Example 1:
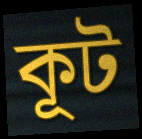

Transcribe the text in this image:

কূট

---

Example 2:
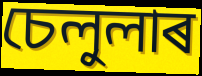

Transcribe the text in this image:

চেলুলাৰ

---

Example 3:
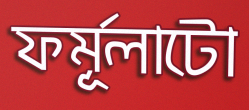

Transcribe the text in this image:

ফৰ্মূলাটো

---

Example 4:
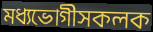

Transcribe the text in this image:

মধ্যভোগীসকলক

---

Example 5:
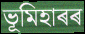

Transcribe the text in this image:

ভূমিহাৰৰ